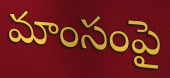
మాంసంపై